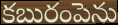
కబురంపెను